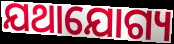
ଯଥାଯୋଗ୍ୟ